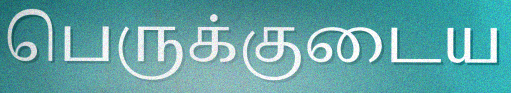
பெருக்குடைய